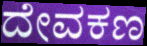
ದೇವಕಣ